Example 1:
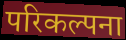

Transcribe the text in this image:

परिकल्पना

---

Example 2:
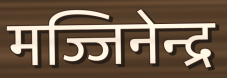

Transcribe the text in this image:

मज्जिनेन्द्र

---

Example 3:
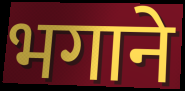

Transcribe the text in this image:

भगाने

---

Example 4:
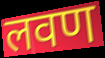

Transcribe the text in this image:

लवण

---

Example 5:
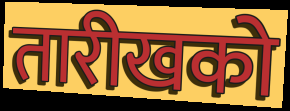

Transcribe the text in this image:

तारीखको